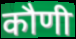
कौणी